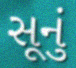
સૂનું